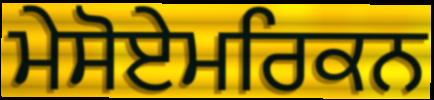
ਮੇਸੋਏਮਰਿਕਨ